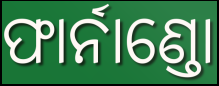
ଫାର୍ନାଣ୍ଡୋ